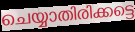
ചെയ്യാതിരിക്കട്ടെ